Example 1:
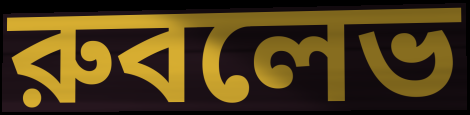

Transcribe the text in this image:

রুবলেভ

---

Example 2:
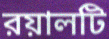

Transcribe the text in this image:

রয়ালটি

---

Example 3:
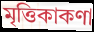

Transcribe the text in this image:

মৃত্তিকাকণা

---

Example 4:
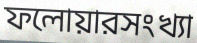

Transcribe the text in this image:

ফলোয়ারসংখ্যা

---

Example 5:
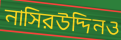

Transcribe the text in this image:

নাসিরউদ্দিনও